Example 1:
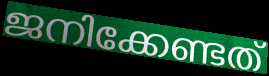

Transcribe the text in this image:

ജനിക്കേണ്ടത്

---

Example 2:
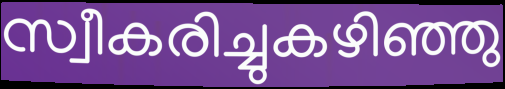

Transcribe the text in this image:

സ്വീകരിച്ചുകഴിഞ്ഞു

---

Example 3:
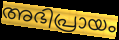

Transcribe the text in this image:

അഭിപ്രായം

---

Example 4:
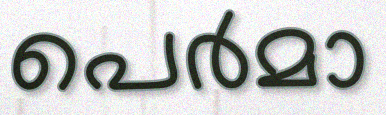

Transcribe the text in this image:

പെർമാ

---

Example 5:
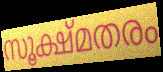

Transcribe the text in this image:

സൂക്ഷ്മതരം